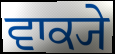
ਵਾਕ੍ਯੇ